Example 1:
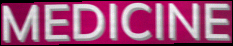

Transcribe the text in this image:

MEDICINE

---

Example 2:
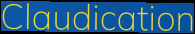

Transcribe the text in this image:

Claudication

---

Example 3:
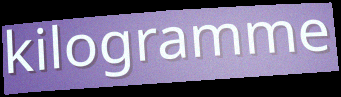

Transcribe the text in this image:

kilogramme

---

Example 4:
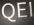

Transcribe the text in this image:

QEI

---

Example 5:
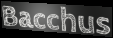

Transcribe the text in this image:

Bacchus